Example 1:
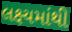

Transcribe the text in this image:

લક્ષ્યમાંથી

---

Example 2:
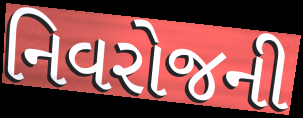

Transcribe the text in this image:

નિવરોજની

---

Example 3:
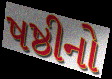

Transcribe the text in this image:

ષષ્ઠીનો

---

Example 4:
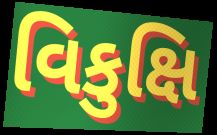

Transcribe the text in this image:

વિકુક્ષિ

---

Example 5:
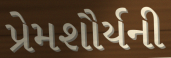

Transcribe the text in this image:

પ્રેમશૌર્યની